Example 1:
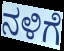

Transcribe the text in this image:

ನಳಿಗೆ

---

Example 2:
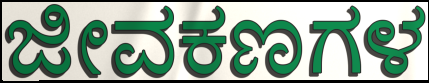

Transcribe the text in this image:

ಜೀವಕಣಗಳ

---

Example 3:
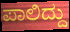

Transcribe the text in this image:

ಪಾಲಿದ್ದು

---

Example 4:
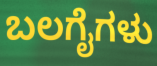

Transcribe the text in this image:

ಬಲಗೈಗಳು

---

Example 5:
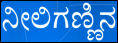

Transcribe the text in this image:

ನೀಲಿಗಣ್ಣಿನ